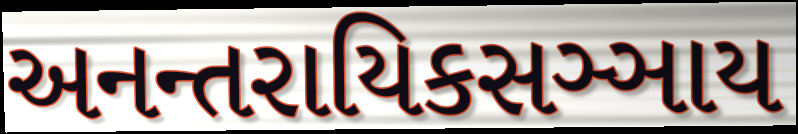
અનન્તરાયિકસઞ્ઞાય